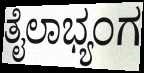
ತೈಲಾಭ್ಯಂಗ